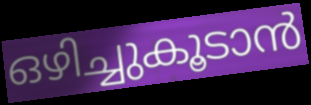
ഒഴിച്ചുകൂടാൻ